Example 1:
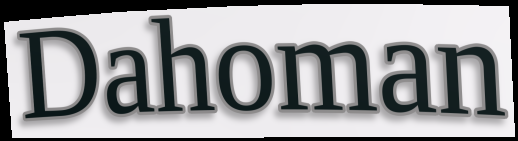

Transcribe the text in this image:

Dahoman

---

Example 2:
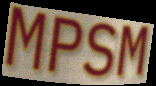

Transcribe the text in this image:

MPSM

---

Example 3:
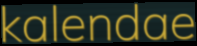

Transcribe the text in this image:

kalendae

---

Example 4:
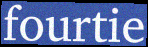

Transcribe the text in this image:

fourtie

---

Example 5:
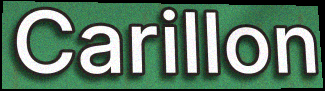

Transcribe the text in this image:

Carillon